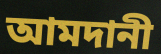
আমদানী